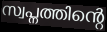
സ്വപ്നത്തിന്റെ